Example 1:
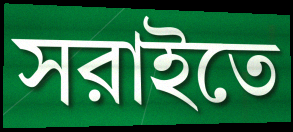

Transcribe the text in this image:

সরাইতে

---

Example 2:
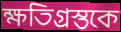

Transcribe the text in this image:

ক্ষতিগ্রস্তকে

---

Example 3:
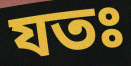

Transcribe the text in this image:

যতঃ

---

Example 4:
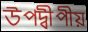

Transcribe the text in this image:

উপদ্বীপীয়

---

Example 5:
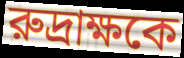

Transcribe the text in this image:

রুদ্রাক্ষকে